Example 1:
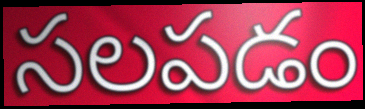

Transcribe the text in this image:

సలపడం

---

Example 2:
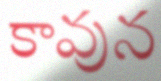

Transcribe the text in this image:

కావున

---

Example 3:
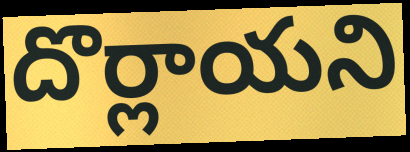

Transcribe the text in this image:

దొర్లాయని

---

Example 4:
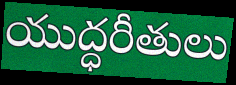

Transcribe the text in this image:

యుద్ధరీతులు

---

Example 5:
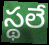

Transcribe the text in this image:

స్థలే